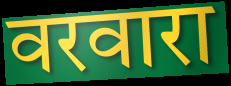
वरवारा